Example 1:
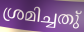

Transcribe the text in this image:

ശ്രമിച്ചതു്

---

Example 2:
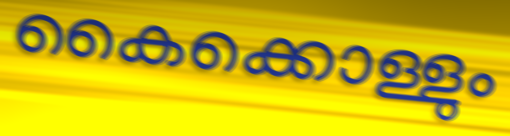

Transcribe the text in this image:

കൈക്കൊള്ളും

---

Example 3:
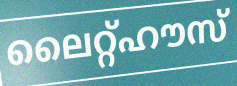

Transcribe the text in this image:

ലൈറ്റ്ഹൗസ്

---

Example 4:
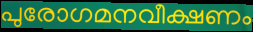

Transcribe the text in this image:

പുരോഗമനവീക്ഷണം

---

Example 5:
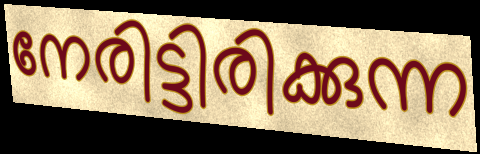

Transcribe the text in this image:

നേരിട്ടിരിക്കുന്ന